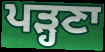
ਪੜ੍ਹਣਾ